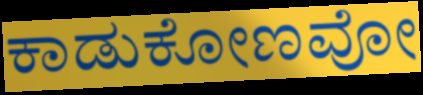
ಕಾಡುಕೋಣವೋ